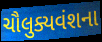
ચૌલુક્યવંશના